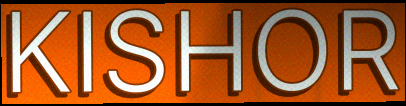
KISHOR